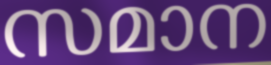
സമാന